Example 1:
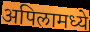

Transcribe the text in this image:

अपिलामध्ये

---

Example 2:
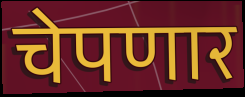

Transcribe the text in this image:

चेपणार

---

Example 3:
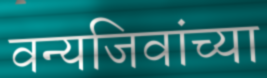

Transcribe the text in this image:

वन्यजिवांच्या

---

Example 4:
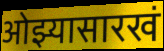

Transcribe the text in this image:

ओझ्यासारखं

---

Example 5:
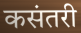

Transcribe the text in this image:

कसंतरी